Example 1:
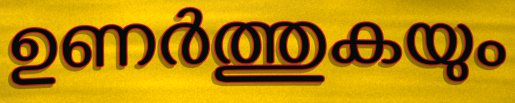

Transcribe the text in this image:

ഉണർത്തുകയും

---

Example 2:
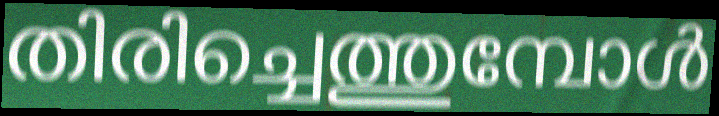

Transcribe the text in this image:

തിരിച്ചെത്തുമ്പോൾ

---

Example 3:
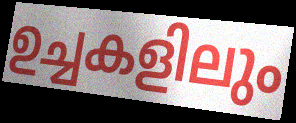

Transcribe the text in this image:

ഉച്ചകളിലും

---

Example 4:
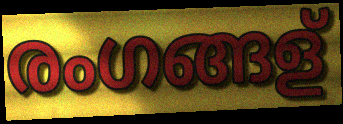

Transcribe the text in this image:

രംഗങ്ങള്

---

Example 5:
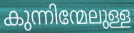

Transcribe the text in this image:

കുന്നിന്മേലുള്ള